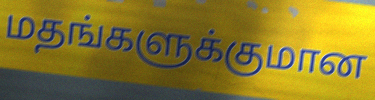
மதங்களுக்குமான